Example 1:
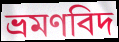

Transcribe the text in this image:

ভ্রমণবিদ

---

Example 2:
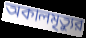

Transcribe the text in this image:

অকালমৃত্যুর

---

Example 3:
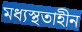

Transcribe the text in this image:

মধ্যস্থতাহীন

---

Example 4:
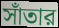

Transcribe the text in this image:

সাঁতার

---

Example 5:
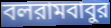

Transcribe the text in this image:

বলরামবাবুর